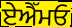
ਏਐੱਮਓ